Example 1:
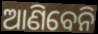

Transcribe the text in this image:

ଆଣିବେନି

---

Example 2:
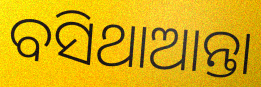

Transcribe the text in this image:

ବସିଥାଆନ୍ତା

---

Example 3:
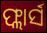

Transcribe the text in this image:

ଫ୍ଲାର୍ସ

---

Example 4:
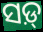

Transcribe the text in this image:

ସଡ଼୍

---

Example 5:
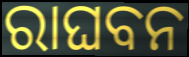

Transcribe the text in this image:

ରାଘବନ